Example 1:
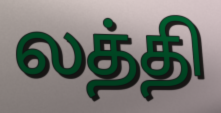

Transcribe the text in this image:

லத்தி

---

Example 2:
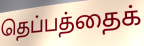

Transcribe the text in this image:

தெப்பத்தைக்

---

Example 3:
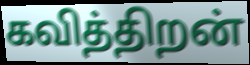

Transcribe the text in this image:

கவித்திறன்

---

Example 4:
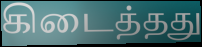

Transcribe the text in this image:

கிடைத்தது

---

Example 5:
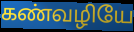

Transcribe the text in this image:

கண்வழியே